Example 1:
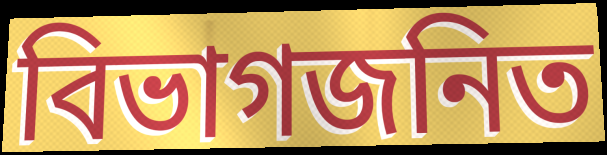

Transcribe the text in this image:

বিভাগজনিত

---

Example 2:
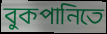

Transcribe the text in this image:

বুকপানিতে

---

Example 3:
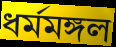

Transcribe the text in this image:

ধর্মমঙ্গল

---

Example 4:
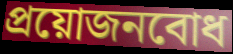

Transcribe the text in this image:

প্রয়োজনবোধ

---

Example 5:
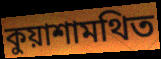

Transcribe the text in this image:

কুয়াশামথিত